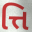
ત્તિ